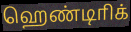
ஹெண்டிரிக்